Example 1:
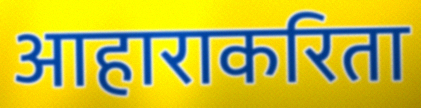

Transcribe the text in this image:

आहाराकरिता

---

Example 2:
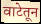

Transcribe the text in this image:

वाटेतून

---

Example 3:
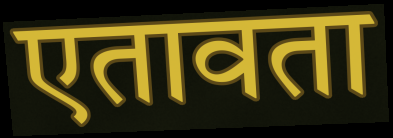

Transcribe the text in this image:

एतावता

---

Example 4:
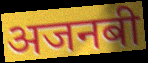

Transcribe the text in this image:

अजनबी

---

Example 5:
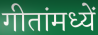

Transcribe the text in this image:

गीतांमध्यें